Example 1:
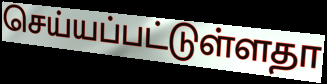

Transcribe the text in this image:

செய்யப்பட்டுள்ளதா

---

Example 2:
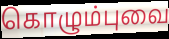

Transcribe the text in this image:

கொழும்புவை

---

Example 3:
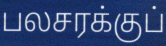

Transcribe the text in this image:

பலசரக்குப்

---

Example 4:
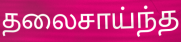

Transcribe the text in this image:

தலைசாய்ந்த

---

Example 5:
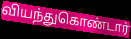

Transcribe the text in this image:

வியந்துகொண்டார்